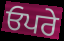
ਓਪਰੇ